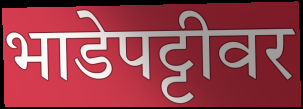
भाडेपट्टीवर